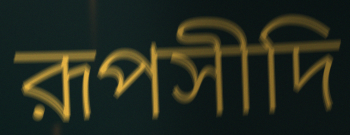
রূপসীদি